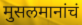
मुसलमानांचं